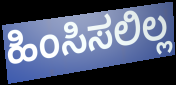
ಹಿಂಸಿಸಲಿಲ್ಲ